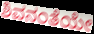
ಶಿವನಂತೆಯೇ